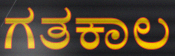
ಗತಕಾಲ